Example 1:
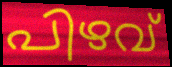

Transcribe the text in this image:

പിഴവ്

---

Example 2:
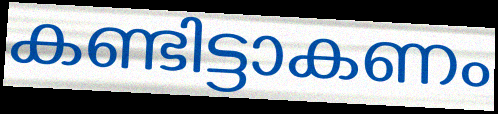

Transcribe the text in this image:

കണ്ടിട്ടാകണം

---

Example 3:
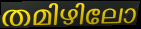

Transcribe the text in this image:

തമിഴിലോ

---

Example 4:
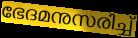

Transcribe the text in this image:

ഭേദമനുസരിച്ച്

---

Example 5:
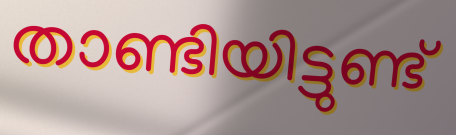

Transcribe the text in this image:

താണ്ടിയിട്ടുണ്ട്